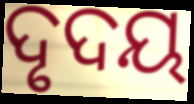
ଦୃଦୟ